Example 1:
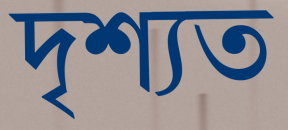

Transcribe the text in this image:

দৃশ্যত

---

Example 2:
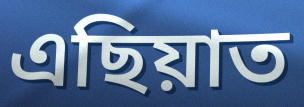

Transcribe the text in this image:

এছিয়াত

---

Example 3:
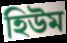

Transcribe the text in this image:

হিউম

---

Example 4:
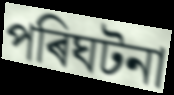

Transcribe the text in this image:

পৰিঘটনা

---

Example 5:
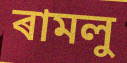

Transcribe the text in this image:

ৰামলু